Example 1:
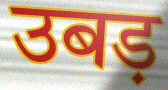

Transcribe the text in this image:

उबड़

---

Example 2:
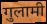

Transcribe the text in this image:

गुलामी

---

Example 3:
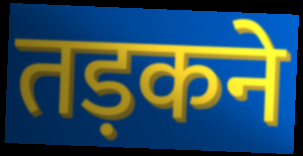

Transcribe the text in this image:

तड़कने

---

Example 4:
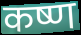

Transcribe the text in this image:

कष्ण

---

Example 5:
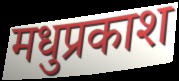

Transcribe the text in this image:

मधुप्रकाश